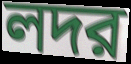
লদর